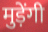
मुड़ेंगी